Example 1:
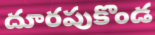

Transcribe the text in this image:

దూరపుకొండ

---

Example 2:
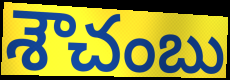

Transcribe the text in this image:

శౌచంబు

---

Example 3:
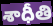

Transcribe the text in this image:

శాధీతి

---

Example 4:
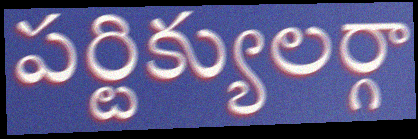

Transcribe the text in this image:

పర్టిక్యులర్గా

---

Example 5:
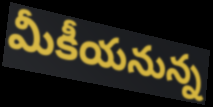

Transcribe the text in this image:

మీకీయనున్న